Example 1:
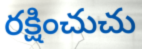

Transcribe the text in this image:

రక్షించుచు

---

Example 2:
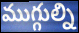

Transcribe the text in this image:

ముగ్గుల్ని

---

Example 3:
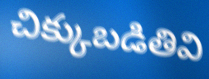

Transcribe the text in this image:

చిక్కుబడితివి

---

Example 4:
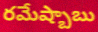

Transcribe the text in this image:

రమేష్బాబు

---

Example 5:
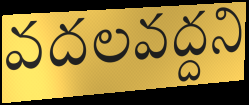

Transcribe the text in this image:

వదలవద్దని